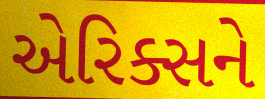
એરિક્સને